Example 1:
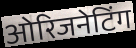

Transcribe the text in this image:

ओरिजनेटिंग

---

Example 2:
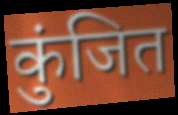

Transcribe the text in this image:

कुंजित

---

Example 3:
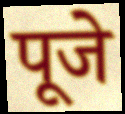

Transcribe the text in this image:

पूजे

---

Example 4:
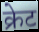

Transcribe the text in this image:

क्रेट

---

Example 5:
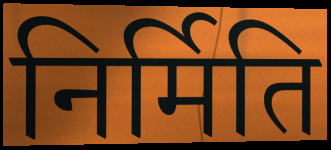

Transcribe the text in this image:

निर्मिति